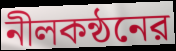
নীলকন্ঠনের